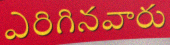
ఎరిగినవారు